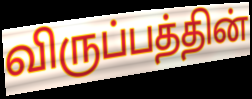
விருப்பத்தின்